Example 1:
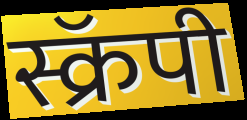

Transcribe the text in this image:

स्क्रॅपी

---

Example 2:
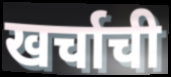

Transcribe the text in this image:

खर्चाची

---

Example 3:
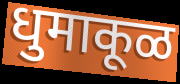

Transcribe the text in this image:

धुमाकूळ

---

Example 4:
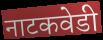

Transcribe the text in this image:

नाटकवेडी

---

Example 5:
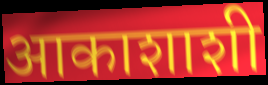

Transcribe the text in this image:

आकाशाशी